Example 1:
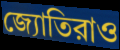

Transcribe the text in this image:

জ্যোতিরাও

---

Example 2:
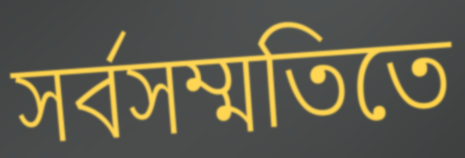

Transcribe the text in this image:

সর্বসম্মতিতে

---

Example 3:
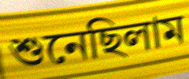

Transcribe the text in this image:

শুনেছিলাম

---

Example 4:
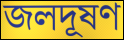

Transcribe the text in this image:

জলদূষণ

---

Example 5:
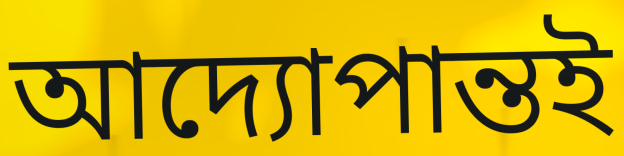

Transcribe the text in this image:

আদ্যোপান্তই